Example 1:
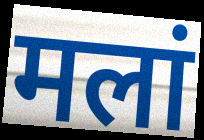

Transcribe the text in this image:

मलां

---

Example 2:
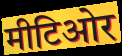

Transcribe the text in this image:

मीटिओर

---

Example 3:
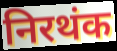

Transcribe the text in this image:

निरथंक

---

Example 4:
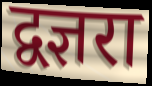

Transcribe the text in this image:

द्वज्ञरा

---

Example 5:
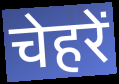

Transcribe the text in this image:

चेहरें